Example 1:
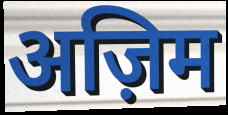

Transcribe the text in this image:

अज़िम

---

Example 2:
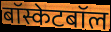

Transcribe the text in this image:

बॉस्केटबॉल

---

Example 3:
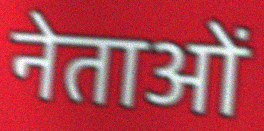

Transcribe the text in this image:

नेताओं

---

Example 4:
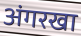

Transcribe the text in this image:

अंगरखा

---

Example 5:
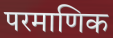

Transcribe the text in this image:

परमाणिक